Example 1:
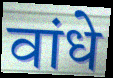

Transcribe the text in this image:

वांधे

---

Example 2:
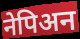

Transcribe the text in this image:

नेपिअन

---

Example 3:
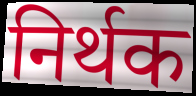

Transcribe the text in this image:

निर्थक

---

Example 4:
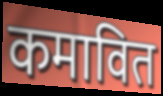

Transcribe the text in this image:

कमावित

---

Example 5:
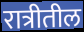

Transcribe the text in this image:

रात्रीतील